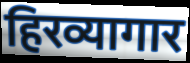
हिरव्यागार